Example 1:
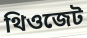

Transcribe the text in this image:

থিওজেট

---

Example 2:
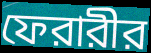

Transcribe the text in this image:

ফেরারীর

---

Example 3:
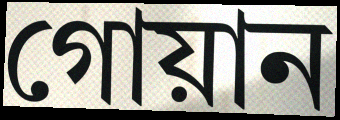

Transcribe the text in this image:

গোয়ান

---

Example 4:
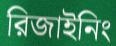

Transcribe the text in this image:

রিজাইনিং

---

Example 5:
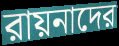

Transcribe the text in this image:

রায়নাদের